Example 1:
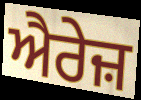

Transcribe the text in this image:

ਐਰੇਜ਼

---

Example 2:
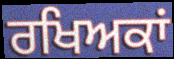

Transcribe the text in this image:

ਰਖਿਅਕਾਂ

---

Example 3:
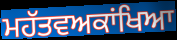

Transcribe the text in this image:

ਮਹੱਤਵਅਕਾਂਖਿਆ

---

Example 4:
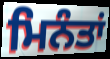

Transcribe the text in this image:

ਮਿਨੰਤਾਂ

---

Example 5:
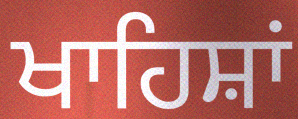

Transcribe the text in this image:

ਖਾਹਿਸ਼ਾਂ